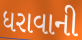
ધરાવાની